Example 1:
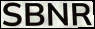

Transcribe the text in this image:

SBNR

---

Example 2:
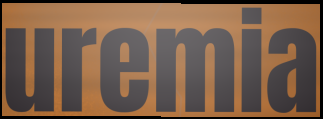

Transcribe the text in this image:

uremia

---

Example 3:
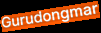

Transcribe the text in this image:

Gurudongmar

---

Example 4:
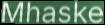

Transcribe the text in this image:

Mhaske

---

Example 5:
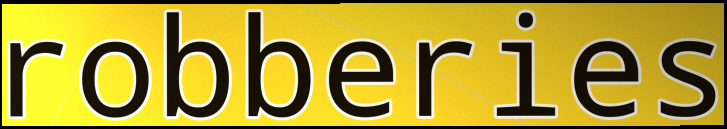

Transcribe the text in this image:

robberies